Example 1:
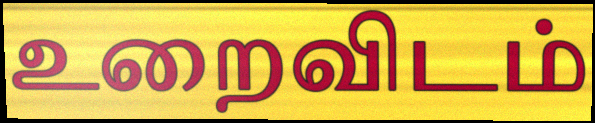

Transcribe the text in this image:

உறைவிடம்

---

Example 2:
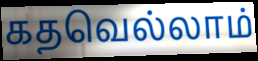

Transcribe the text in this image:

கதவெல்லாம்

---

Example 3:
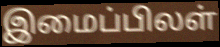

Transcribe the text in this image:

இமைப்பிலள்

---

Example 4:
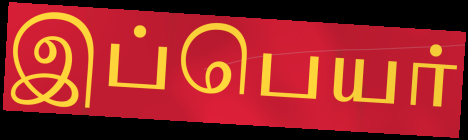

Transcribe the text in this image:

இப்பெயர்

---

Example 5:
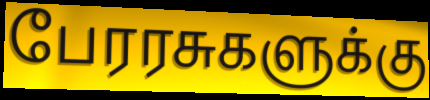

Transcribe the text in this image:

பேரரசுகளுக்கு